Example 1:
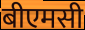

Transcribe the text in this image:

बीएमसी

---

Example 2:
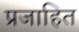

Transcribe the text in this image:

प्रजाहित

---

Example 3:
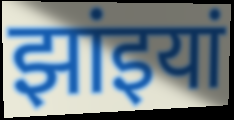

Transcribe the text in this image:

झांइयां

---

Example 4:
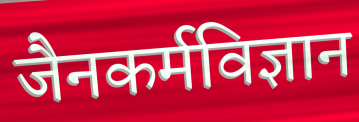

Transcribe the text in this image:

जैनकर्मविज्ञान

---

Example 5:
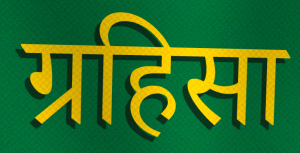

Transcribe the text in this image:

ग्रहिसा